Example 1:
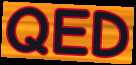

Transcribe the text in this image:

QED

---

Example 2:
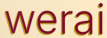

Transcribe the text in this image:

werai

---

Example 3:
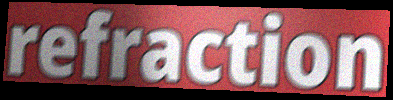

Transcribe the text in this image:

refraction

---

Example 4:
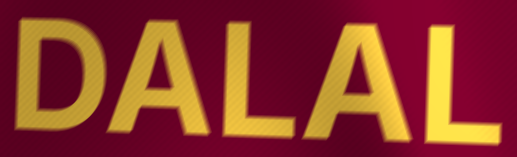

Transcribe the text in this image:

DALAL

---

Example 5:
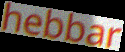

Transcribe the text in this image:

hebbar